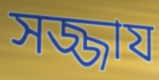
সজ্জায